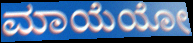
ಮಾಯೆಯೋ